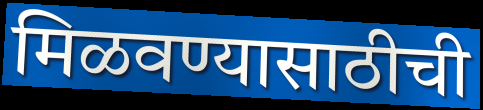
मिळवण्यासाठीची